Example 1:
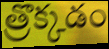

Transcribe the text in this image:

త్రొక్కడం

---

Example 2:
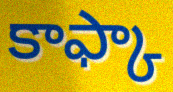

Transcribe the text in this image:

కాఫ్కా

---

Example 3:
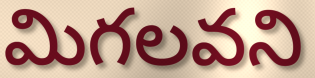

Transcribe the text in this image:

మిగలవని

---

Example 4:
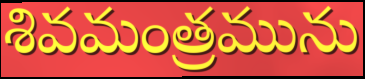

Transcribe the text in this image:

శివమంత్రమును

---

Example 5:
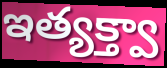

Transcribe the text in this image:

ఇత్యక్త్వా